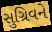
સુગ્રિવને